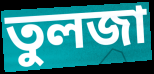
তুলজা